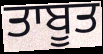
ਤਾਬੂਤ